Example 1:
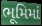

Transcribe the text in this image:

ભૂમિમાં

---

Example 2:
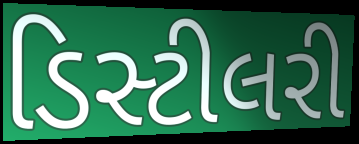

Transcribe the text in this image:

ડિસ્ટીલરી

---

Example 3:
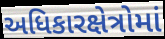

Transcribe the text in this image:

અધિકારક્ષેત્રોમાં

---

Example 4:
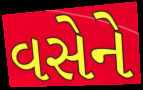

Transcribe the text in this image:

વસેને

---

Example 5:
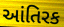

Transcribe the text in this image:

આંતિરક